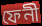
ফেনী